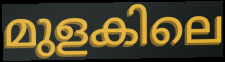
മുളകിലെ